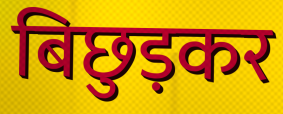
बिछुड़कर